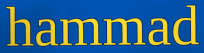
hammad